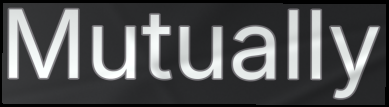
Mutually